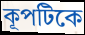
কূপটিকে